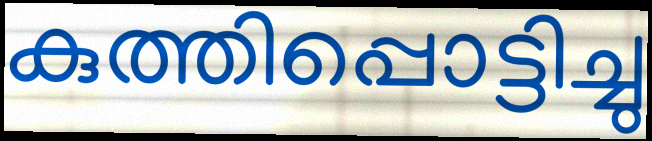
കുത്തിപ്പൊട്ടിച്ചു